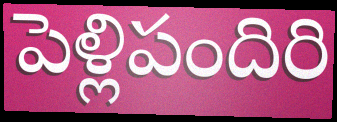
పెళ్లిపందిరి